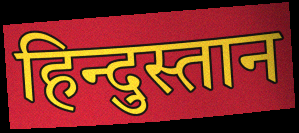
हिन्दुस्तान